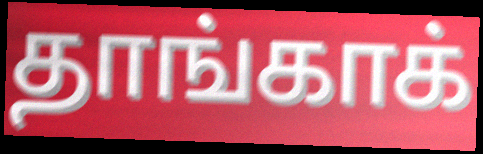
தாங்காக்